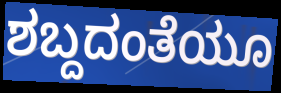
ಶಬ್ದದಂತೆಯೂ